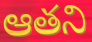
ఆతని